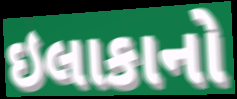
ઇલાકાનો